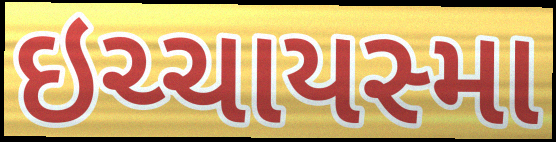
ઇચ્ચાયસ્મા